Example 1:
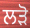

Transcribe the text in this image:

ਲੜੋ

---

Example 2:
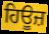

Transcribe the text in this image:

ਹਿਊਜ਼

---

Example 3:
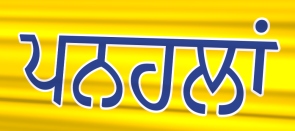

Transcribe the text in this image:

ਪਨਹਲਾਂ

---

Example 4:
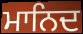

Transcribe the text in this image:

ਮਾਨਿਦ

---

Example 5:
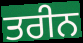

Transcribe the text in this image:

ਤਰੀਨ